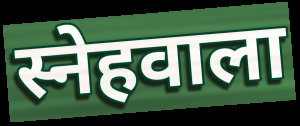
स्नेहवाला